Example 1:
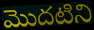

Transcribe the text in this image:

మొదటిని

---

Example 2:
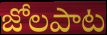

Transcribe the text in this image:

జోలపాట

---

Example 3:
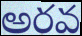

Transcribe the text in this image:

అరవ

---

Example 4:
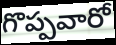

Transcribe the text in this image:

గొప్పవారో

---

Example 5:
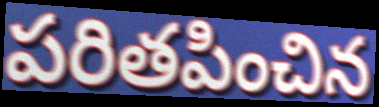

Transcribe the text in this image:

పరితపించిన